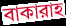
বাকারাহ